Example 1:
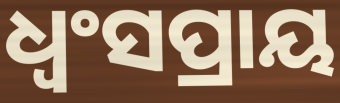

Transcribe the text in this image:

ଧ୍ୱଂସପ୍ରାୟ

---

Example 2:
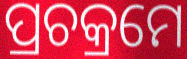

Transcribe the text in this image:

ପ୍ରଚକ୍ରମେ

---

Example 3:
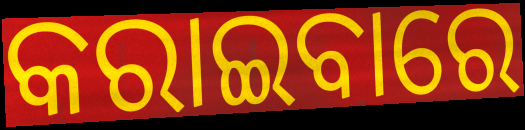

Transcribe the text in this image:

କରାଇବାରେ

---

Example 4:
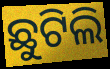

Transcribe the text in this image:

ଛୁଟିଲି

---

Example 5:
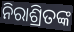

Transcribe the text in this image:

ନିରାଶ୍ରିତଙ୍କ